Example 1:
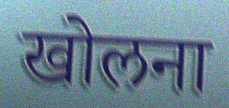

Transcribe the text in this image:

खोलना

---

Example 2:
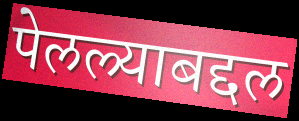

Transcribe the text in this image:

पेलल्याबद्दल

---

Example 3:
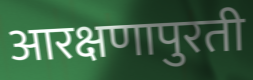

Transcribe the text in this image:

आरक्षणापुरती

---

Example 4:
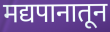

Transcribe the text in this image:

मद्यपानातून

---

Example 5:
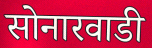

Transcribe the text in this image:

सोनारवाडी